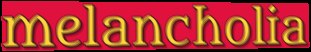
melancholia